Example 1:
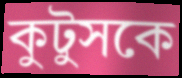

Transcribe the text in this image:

কুটুসকে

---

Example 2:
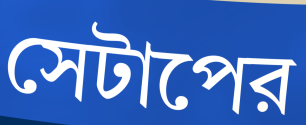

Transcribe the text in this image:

সেটাপের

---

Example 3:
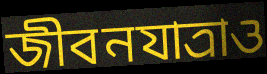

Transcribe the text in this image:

জীবনযাত্রাও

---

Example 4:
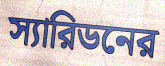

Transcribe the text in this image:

স্যারিডনের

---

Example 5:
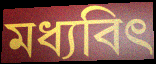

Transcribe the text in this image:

মধ্যবিৎ